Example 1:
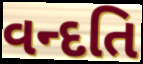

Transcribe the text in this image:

વન્દતિ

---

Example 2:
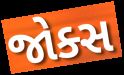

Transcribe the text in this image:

જોક્સ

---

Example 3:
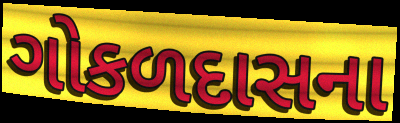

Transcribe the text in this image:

ગોકળદાસના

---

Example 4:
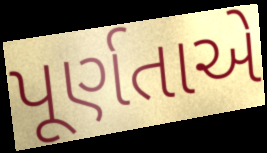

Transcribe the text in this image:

પૂર્ણતાએ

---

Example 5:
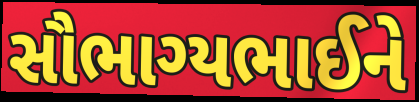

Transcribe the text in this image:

સૌભાગ્યભાઈને